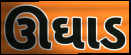
ઊઘાડ